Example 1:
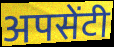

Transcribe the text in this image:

अपसेंटी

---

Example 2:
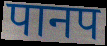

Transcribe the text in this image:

पानप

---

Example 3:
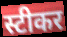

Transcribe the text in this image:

स्टीकर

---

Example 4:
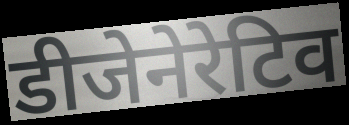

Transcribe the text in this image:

डीजेनेरेटिव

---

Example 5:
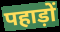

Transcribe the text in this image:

पहाड़ों